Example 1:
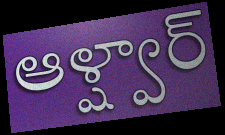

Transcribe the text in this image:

ఆళ్ష్వార్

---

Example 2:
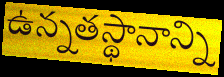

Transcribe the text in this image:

ఉన్నతస్థానాన్ని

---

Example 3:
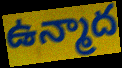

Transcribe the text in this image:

ఉన్మాద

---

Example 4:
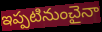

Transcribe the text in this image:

ఇప్పటినుంచైనా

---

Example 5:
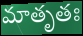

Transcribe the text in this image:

మాతృతః